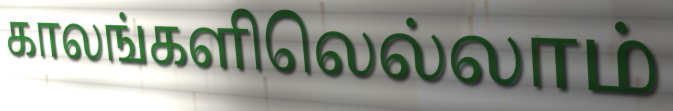
காலங்களிலெல்லாம்